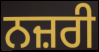
ਨਜ਼ਰੀ